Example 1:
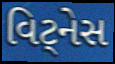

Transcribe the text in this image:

વિટ્નેસ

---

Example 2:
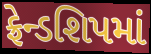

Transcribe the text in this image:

ફ્રેન્ડશિપમાં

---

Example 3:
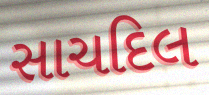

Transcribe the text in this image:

સાચદિલ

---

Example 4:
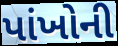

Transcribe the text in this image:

પાંખોની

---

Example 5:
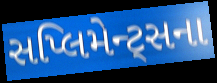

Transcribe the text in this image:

સપ્લિમેન્ટ્સના